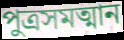
পুত্রসমত্মান